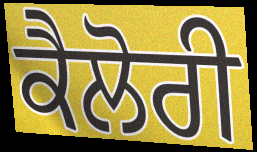
ਕੈਲੋਰੀ